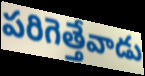
పరిగెత్తేవాడు